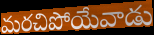
మరచిపోయేవాడు